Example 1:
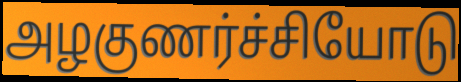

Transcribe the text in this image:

அழகுணர்ச்சியோடு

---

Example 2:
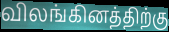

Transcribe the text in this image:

விலங்கினத்திற்கு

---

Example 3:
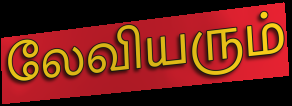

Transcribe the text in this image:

லேவியரும்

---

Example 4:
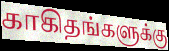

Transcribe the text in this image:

காகிதங்களுக்கு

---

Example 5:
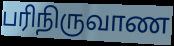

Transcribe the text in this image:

பரிநிருவாண